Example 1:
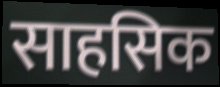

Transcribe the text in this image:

साहसिक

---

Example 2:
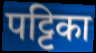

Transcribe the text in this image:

पट्टिका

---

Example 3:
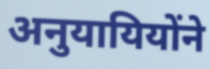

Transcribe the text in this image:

अनुयायियोंने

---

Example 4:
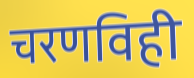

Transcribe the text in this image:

चरणविही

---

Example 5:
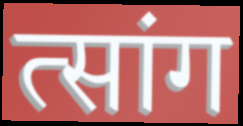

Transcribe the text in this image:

त्सांग